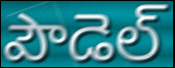
పౌడెల్